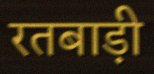
रतबाड़ी